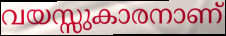
വയസ്സുകാരനാണ്